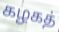
கழகத்